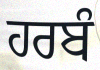
ਹਰਬੰ